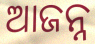
ଆଜନ୍ନ